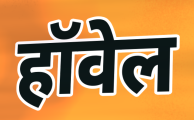
हॉवेल